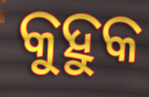
କୁହୁକ